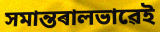
সমান্তৰালভাৱেই